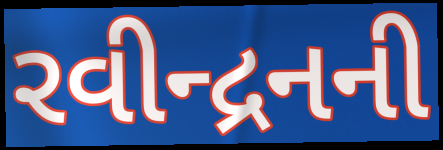
રવીન્દ્રનની